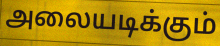
அலையடிக்கும்